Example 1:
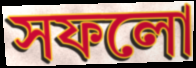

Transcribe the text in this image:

সফলো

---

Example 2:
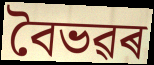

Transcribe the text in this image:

বৈভৱৰ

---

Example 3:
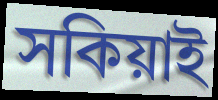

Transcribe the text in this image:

সকিয়াই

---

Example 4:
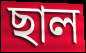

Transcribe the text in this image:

ছাল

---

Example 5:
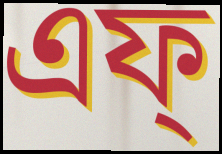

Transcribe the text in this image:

এফ্